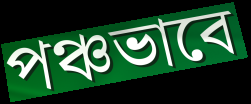
পঞ্চভাবে